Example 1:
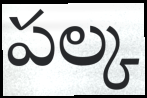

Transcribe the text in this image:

పల్క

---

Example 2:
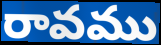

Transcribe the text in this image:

రావము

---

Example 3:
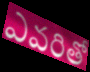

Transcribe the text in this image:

ఎవరితో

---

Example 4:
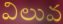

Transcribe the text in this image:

విలువ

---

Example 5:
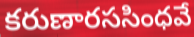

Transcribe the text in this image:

కరుణారససింధవే